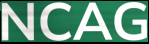
NCAG